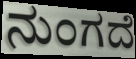
ನುಂಗದೆ